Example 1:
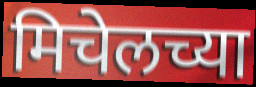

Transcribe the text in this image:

मिचेलच्या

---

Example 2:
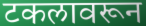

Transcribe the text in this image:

टकलावरून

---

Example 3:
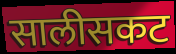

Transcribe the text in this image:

सालीसकट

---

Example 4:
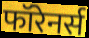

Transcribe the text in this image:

फॉरेनर्स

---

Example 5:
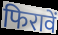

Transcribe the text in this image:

फिरावें